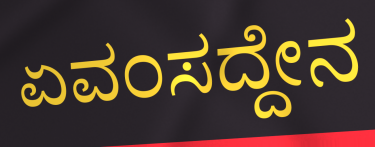
ಏವಂಸದ್ದೇನ